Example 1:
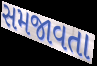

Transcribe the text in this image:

સમજાવતા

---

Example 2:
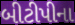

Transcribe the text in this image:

બીટીપીના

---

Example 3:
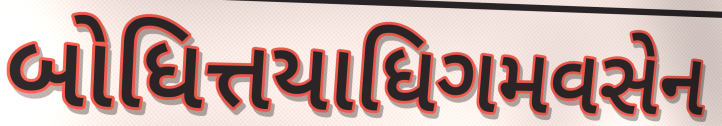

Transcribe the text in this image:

બોધિત્તયાધિગમવસેન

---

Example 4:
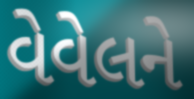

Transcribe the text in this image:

વેવેલને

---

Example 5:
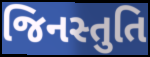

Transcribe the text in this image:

જિનસ્તુતિ